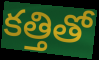
కత్తితో